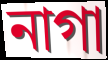
নাগা